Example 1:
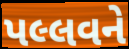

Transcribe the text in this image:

પલ્લવને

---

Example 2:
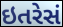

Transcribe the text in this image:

ઇતરેસં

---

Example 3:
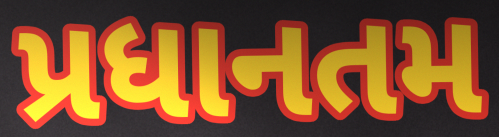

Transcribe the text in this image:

પ્રધાનતમ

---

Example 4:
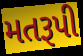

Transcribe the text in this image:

મતરૂપી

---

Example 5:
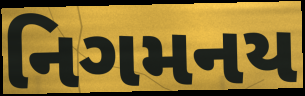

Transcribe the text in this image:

નિગમનય